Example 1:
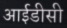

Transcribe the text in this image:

आईडीसी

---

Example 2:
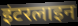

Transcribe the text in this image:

इंटरलाइन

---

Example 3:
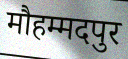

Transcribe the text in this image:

मौहम्मदपुर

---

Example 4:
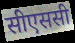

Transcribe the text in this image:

सीएससी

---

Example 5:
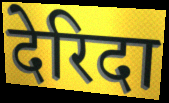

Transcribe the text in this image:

देरिदा